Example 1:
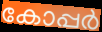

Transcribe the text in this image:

കോപ്പർ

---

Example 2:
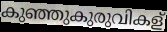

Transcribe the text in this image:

കുഞ്ഞുകുരുവികള്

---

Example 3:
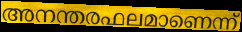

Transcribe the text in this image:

അനന്തരഫലമാണെന്ന്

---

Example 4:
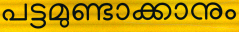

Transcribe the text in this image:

പട്ടമുണ്ടാക്കാനും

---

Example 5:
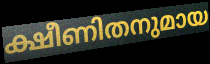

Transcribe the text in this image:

ക്ഷീണിതനുമായ